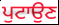
ਪੁਟਾਉਣ